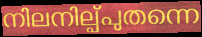
നിലനില്പ്പുതന്നെ